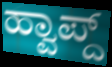
ಹ್ವಾಪ್ದ್